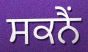
ਸਕਨੈਂ